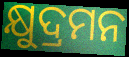
କ୍ଷୁଦ୍ରମନ